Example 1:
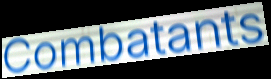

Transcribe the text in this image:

Combatants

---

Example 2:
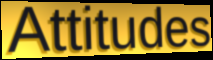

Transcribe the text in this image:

Attitudes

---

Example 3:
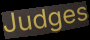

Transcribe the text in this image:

Judges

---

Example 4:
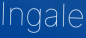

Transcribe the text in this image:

Ingale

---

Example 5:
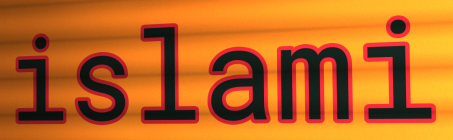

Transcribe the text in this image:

islami